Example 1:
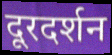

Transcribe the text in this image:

दूरदर्शन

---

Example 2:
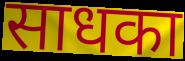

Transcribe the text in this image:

साधका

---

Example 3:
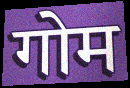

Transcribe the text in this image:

गोम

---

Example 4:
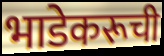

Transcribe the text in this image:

भाडेकरूची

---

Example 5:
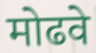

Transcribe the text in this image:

मोढवे